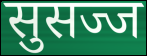
सुसज्ज